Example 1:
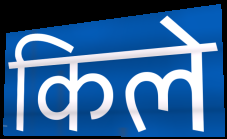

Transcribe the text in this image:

किले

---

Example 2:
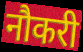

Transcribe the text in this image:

नौकरी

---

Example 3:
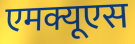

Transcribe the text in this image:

एमक्यूएस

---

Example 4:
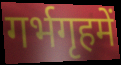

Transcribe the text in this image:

गर्भगृहमें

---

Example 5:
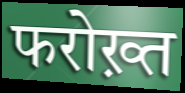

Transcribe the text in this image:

फरोख़्त